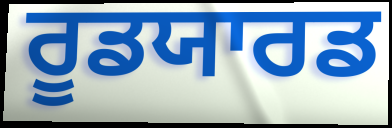
ਰੂਡਯਾਰਡ